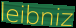
leibniz